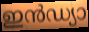
ഇൻഡ്യാ